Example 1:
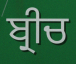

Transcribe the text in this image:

ਬ੍ਰੀਚ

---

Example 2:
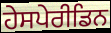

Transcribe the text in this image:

ਹੇਸਪੇਰੀਡਿਨ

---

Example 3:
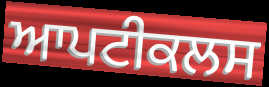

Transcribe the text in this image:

ਆਪਟੀਕਲਸ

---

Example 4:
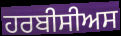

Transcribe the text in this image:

ਹਰਬੀਸੀਅਸ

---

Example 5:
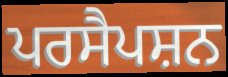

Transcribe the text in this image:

ਪਰਸੈਪਸ਼ਨ